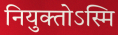
नियुक्तोऽस्मि